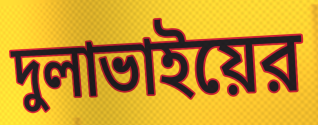
দুলাভাইয়ের